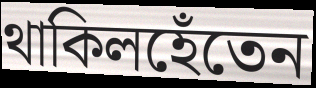
থাকিলহেঁতেন